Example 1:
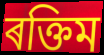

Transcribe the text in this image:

ৰক্তিম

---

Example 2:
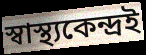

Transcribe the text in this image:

স্বাস্থ্যকেন্দ্ৰই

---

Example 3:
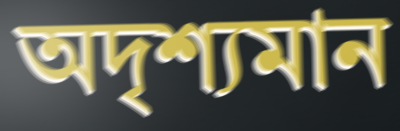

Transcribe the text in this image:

অদৃশ্যমান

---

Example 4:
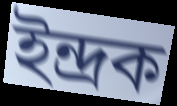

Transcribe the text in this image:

ইন্দ্ৰক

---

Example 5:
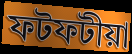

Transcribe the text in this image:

ফটফটীয়া